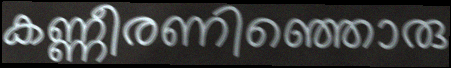
കണ്ണീരണിഞ്ഞൊരു